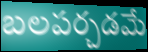
బలపర్చడమే